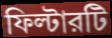
ফিল্টারটি